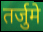
तर्जुमे